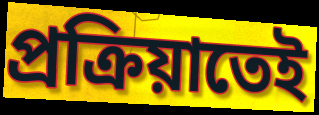
প্রক্রিয়াতেই